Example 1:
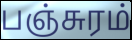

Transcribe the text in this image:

பஞ்சுரம்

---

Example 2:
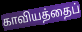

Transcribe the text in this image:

காவியத்தைப்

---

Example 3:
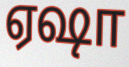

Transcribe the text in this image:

ஏஷா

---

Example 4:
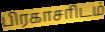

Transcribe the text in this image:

பிரகாசரிடம்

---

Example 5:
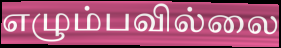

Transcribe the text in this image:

எழும்பவில்லை